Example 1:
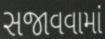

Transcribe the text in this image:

સજાવવામાં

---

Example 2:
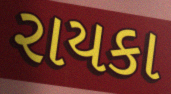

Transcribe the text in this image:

રાયકા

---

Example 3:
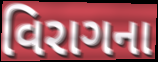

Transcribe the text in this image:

વિરાગના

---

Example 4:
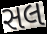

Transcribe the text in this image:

સલ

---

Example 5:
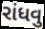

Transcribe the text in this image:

રાંધવુ